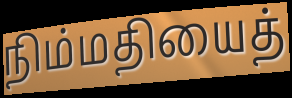
நிம்மதியைத்